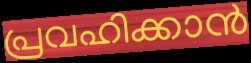
പ്രവഹിക്കാൻ